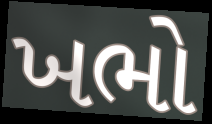
ખભો